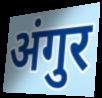
अंगुर